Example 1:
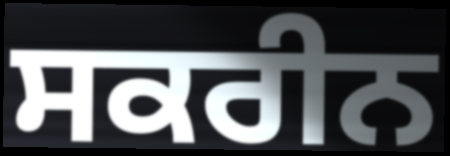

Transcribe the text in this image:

ਸਕਰੀਨ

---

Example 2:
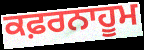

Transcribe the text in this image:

ਕਫ਼ਰਨਾਹੂਮ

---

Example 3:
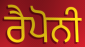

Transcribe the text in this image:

ਰੈਪੋਨੀ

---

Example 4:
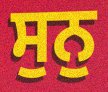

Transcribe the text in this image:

ਸੁਨੁ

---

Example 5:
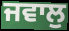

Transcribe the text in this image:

ਜਵਾਲੁ